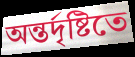
অন্তর্দৃষ্টিতে